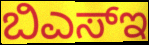
ಬಿಎಸ್ಇ